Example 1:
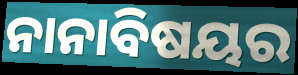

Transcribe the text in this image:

ନାନାବିଷୟର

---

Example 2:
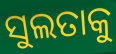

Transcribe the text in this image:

ସୁଲତାକୁ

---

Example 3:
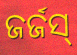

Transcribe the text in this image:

ଜର୍ଜସ୍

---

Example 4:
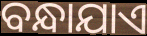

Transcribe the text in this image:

ବନ୍ଧାଯାଏ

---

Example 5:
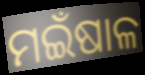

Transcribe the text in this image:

ମଇଁଷାଳ